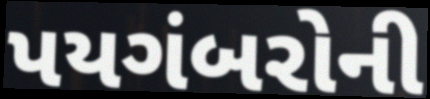
પયગંબરોની